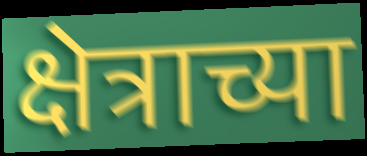
क्षेत्राच्या